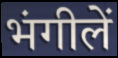
भंगीलें